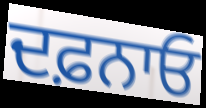
ਦਫ਼ਨਾਓ